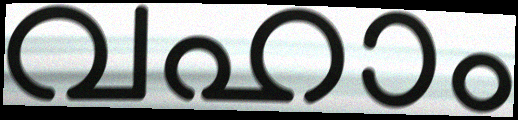
വഹാം